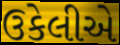
ઉકેલીએ